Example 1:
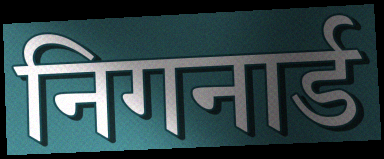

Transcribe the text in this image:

निगनार्ड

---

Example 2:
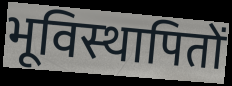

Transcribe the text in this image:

भूविस्थापितों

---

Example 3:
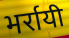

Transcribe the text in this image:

भर्रायी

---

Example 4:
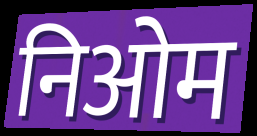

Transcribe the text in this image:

निओम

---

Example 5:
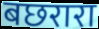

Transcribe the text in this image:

बछरारा